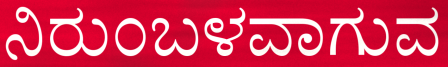
ನಿರುಂಬಳವಾಗುವ